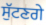
ਸੁੱਟਣਗੇ